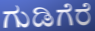
ಗುಡಿಗೆರೆ